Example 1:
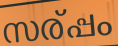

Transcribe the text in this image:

സര്പ്പം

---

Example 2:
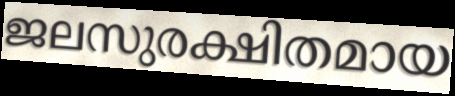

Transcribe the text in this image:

ജലസുരക്ഷിതമായ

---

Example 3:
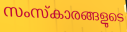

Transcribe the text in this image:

സംസ്‌കാരങ്ങളുടെ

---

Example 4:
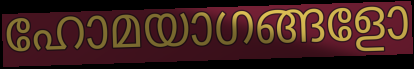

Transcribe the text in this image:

ഹോമയാഗങ്ങളോ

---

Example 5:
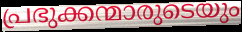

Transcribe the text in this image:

പ്രഭുക്കന്മാരുടെയും